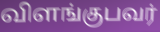
விளங்குபவர்